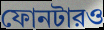
ফোনটারও